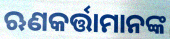
ଋଣକର୍ତ୍ତାମାନଙ୍କ